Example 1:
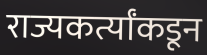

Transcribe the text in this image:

राज्यकर्त्यांकडून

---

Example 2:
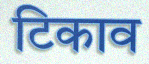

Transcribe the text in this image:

टिकाव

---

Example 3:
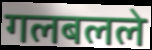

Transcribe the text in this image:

गलबलले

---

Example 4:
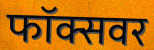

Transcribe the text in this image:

फॉक्सवर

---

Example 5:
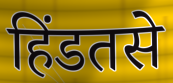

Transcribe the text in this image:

हिंडतसे